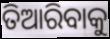
ତିଆରିବାକୁ